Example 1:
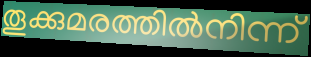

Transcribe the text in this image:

തൂക്കുമരത്തിൽനിന്ന്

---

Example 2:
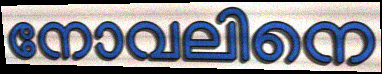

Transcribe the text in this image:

നോവലിനെ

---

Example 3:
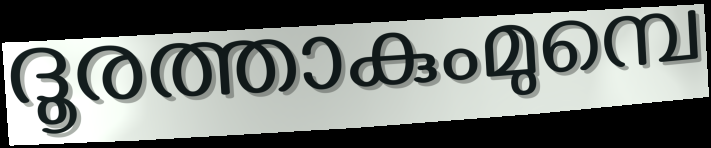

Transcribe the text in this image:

ദൂരത്താകുംമുമ്പെ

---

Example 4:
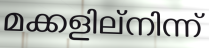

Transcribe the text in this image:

മക്കളില്നിന്ന്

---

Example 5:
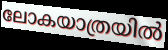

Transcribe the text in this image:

ലോകയാത്രയിൽ